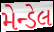
મેન્ડેલ